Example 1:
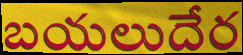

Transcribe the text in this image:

బయలుదేర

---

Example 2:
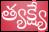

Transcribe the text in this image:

త్యక్ష్యే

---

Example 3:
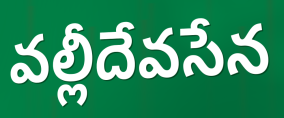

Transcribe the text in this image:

వల్లీదేవసేన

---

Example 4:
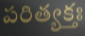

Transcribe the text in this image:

పరిత్యక్తః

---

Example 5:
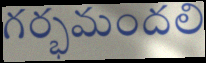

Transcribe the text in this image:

గర్భమందలి